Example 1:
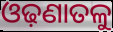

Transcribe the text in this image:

ଓଢ଼ଣାତଳୁ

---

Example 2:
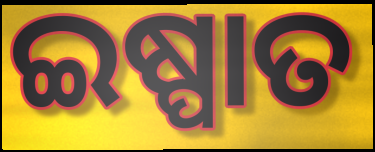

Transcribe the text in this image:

ଇଷ୍ପାତ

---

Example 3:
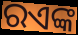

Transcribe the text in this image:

ରଏଙ୍କ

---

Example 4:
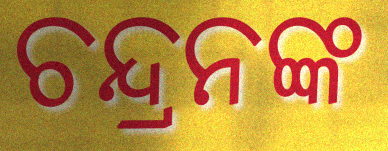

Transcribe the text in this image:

ଚନ୍ଦ୍ରନଙ୍କ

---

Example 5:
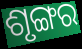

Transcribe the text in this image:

ଶୃଙ୍ଗର